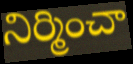
నిర్మించా